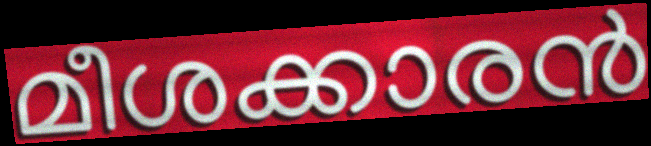
മീശക്കാരൻ